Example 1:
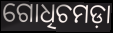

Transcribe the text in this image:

ଗୋଧିଚମଡ଼ା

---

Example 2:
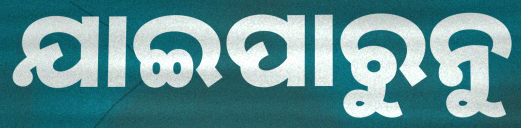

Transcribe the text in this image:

ଯାଇପାରୁନୁ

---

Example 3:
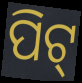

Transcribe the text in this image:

ପିଟ୍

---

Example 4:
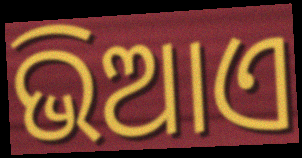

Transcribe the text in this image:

ଭିଆଏ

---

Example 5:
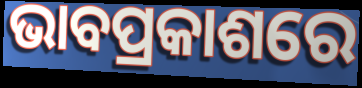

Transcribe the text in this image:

ଭାବପ୍ରକାଶରେ